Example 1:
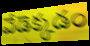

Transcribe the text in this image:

వేడెక్కడం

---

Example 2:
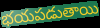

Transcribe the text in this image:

భయపడుతాయి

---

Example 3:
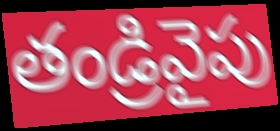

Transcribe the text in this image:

తండ్రివైపు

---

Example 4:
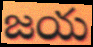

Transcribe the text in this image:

జయ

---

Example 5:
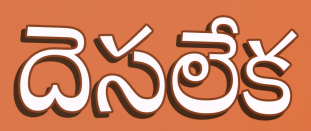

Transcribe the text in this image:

దెసలేక